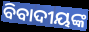
ବିବାଦୀୟଙ୍କ